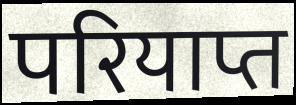
परियाप्त